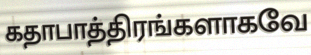
கதாபாத்திரங்களாகவே